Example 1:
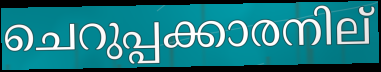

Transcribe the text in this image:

ചെറുപ്പക്കാരനില്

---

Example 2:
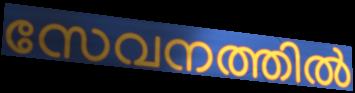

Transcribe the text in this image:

സേവനത്തിൽ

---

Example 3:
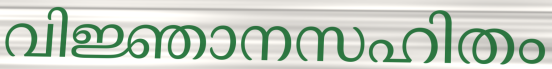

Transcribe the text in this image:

വിജ്ഞാനസഹിതം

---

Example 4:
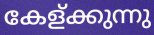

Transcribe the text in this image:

കേള്ക്കുന്നു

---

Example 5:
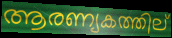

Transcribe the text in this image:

ആരണ്യകത്തില്